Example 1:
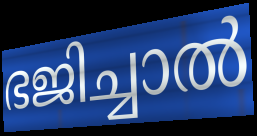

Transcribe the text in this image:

ഭജിച്ചാൽ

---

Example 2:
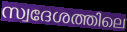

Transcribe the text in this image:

സ്വദേശത്തിലെ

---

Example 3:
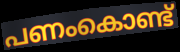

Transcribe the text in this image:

പണംകൊണ്ട്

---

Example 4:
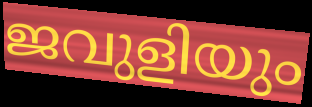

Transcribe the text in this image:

ജവുളിയും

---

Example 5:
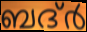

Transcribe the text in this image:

ബദ്ർ